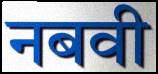
नबवी